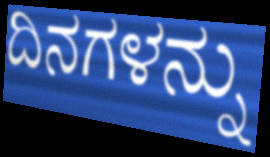
ದಿನಗಳನ್ನು